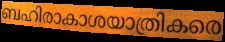
ബഹിരാകാശയാത്രികരെ